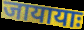
जायायाः